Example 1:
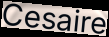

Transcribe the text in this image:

Cesaire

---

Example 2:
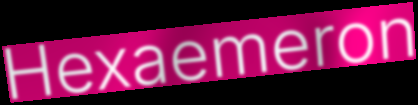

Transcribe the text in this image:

Hexaemeron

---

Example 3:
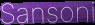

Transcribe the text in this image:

Sansoni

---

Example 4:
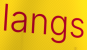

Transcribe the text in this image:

langs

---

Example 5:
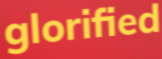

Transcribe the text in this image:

glorified